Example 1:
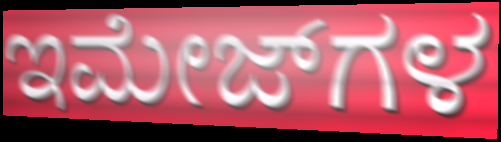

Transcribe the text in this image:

ಇಮೇಜ್‌ಗಳ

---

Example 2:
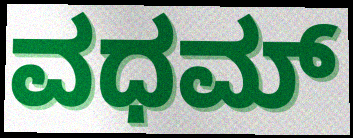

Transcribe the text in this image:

ವಧಮ್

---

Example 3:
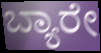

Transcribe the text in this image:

ಬ್ಯಾರೇ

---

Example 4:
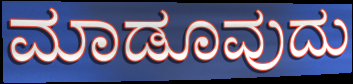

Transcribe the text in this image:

ಮಾಡೂವುದು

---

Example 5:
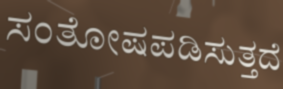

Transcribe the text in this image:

ಸಂತೋಷಪಡಿಸುತ್ತದೆ